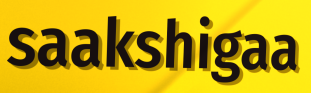
saakshigaa